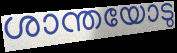
ശാന്തയോടു